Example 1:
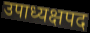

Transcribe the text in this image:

उपाध्यक्षपद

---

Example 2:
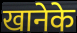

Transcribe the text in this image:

खानेके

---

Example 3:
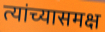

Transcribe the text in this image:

त्यांच्यासमक्ष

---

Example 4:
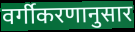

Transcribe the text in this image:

वर्गीकरणानुसार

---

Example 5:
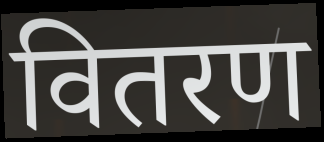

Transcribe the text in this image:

वितरण